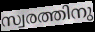
സ്വരത്തിനു